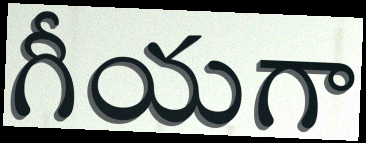
గీయగా